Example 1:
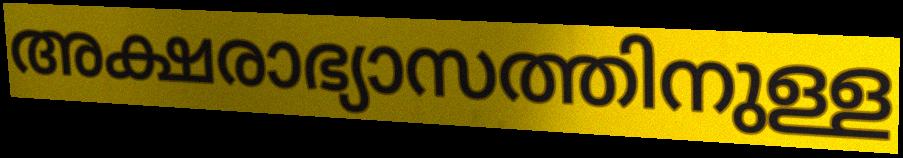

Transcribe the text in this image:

അക്ഷരാഭ്യാസത്തിനുള്ള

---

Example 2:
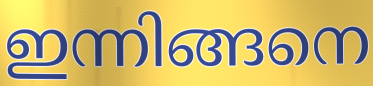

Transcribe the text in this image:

ഇന്നിങ്ങനെ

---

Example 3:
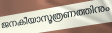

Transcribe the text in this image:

ജനകീയാസൂത്രണത്തിനും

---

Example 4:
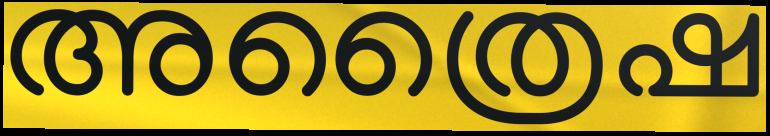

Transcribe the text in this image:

അത്രൈഷ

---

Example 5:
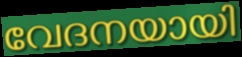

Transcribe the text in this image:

വേദനയായി